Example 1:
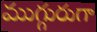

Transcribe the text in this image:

ముగ్గురుగా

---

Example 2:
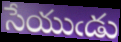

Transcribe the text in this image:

సేయుఁడు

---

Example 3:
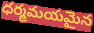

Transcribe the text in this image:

ధర్మమయమైన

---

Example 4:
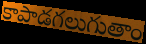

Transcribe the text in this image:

కాపాడగలుగుతాం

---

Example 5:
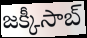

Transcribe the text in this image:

జక్కీసాబ్